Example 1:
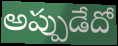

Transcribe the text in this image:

అప్పుడేదో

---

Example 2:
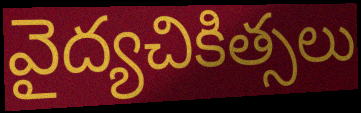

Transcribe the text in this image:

వైద్యచికిత్సలు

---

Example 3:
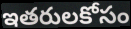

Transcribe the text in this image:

ఇతరులకోసం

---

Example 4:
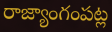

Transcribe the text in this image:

రాజ్యాంగంపట్ల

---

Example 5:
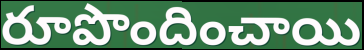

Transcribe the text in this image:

రూపొందించాయి